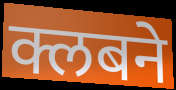
क्लबने